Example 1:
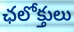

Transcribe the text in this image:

ఛలోక్తులు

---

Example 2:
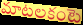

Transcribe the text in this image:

మాటలకంటె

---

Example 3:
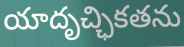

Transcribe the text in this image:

యాదృచ్ఛికతను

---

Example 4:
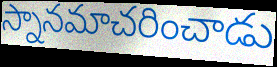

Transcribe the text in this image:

స్నానమాచరించాడు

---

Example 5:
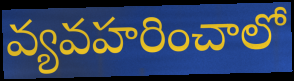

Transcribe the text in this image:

వ్యవహరించాలో